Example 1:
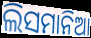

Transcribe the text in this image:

ଲିସମାନିଆ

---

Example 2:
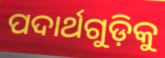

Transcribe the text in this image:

ପଦାର୍ଥଗୁଡ଼ିକୁ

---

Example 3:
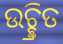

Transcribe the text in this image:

ଉଚ୍ଛ୍ରିତ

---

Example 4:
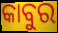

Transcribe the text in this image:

କାବୁର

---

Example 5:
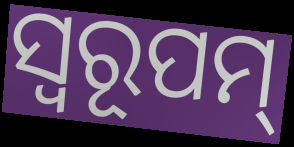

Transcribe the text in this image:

ସ୍ୱରୂପମ୍